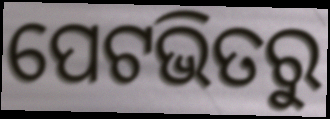
ପେଟଭିତରୁ